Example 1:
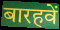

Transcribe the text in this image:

बारहवें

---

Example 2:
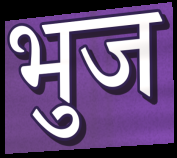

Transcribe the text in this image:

भुज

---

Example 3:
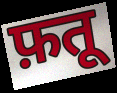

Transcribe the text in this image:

फ़तू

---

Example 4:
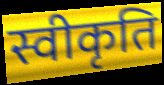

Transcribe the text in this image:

स्‍वीकृति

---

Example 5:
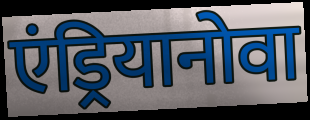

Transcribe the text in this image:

एंड्रियानोवा